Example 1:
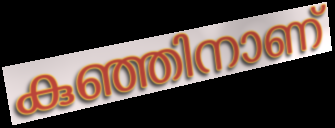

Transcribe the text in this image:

കുഞ്ഞിനാണ്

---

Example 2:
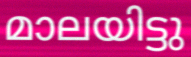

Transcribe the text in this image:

മാലയിട്ടു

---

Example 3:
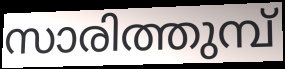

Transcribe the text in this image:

സാരിത്തുമ്പ്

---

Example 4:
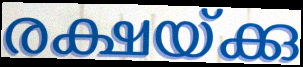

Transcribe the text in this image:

രക്ഷയ്‌ക്കു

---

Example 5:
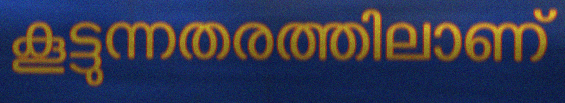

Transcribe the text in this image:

കൂട്ടുന്നതരത്തിലാണ്